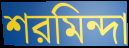
শরমিন্দা